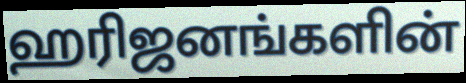
ஹரிஜனங்களின்